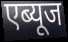
एब्यूज